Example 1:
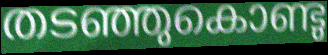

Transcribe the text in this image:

തടഞ്ഞുകൊണ്ടു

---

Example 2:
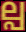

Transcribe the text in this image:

ല്പ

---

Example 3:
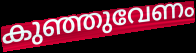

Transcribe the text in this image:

കുഞ്ഞുവേണം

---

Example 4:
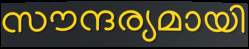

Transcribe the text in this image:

സൗന്ദര്യമായി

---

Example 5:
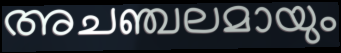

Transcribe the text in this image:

അചഞ്ചലമായും